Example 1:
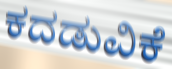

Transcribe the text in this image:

ಕದಡುವಿಕೆ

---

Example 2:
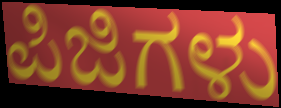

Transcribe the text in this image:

ಪಿಜಿಗಳು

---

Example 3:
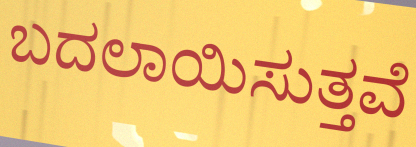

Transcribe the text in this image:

ಬದಲಾಯಿಸುತ್ತವೆ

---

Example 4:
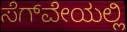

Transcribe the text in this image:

ಸೆಗ್‌ವೇಯಲ್ಲಿ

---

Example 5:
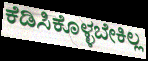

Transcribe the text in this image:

ಕೆಡಿಸಿಕೊಳ್ಳಬೇಕಿಲ್ಲ